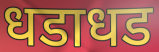
धडाधड